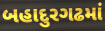
બહાદુરગઢમાં